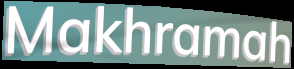
Makhramah